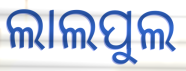
ଲାଲପୁଲ